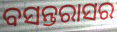
ବସନ୍ତରାସର